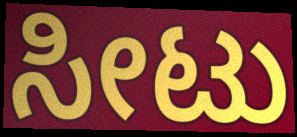
ಸೀಟು